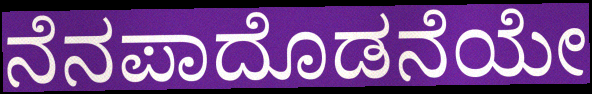
ನೆನಪಾದೊಡನೆಯೇ